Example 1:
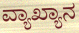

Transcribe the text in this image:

ವ್ಯಾಖ್ಯಾನ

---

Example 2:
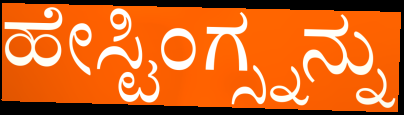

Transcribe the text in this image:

ಹೇಸ್ಟಿಂಗ್ಸ್ನನ್ನು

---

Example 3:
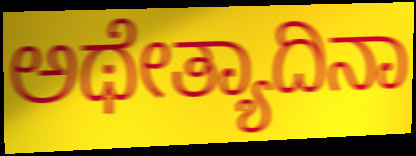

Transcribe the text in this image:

ಅಥೇತ್ಯಾದಿನಾ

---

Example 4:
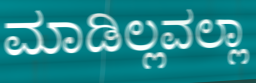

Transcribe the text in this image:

ಮಾಡಿಲ್ಲವಲ್ಲಾ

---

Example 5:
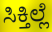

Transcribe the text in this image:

ಸಿಕ್ತಿಲ್ಲೆ